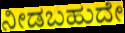
ನೀಡಬಹುದೇ